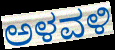
ಅಳವಳಿ